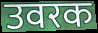
उवरक